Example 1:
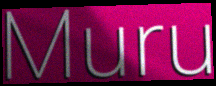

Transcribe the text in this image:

Muru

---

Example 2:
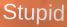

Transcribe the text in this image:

Stupid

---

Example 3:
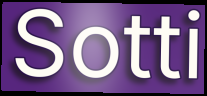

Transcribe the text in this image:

Sotti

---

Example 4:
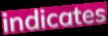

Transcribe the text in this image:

indicates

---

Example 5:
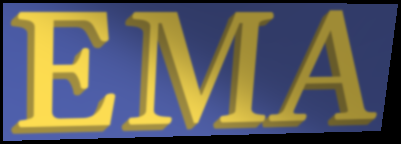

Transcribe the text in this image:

EMA